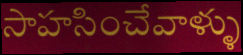
సాహసించేవాళ్ళు